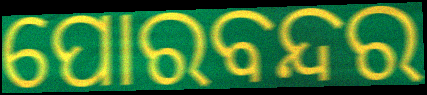
ପୋରବନ୍ଦର